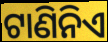
ଟାଣିନିଏ